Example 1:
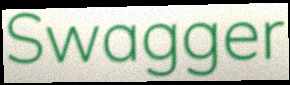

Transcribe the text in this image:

Swagger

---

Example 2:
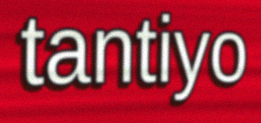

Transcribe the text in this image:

tantiyo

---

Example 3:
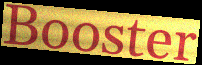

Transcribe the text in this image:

Booster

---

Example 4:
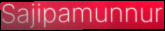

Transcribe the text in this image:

Sajipamunnur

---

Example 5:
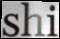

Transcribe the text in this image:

shi